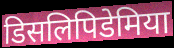
डिसलिपिडेमिया